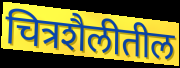
चित्रशैलीतील